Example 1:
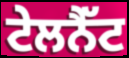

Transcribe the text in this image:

ਟੇਲਨੈੱਟ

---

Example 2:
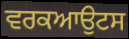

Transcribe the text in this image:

ਵਰਕਆਉਟਸ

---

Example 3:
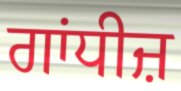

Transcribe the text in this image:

ਗਾਂਧੀਜ਼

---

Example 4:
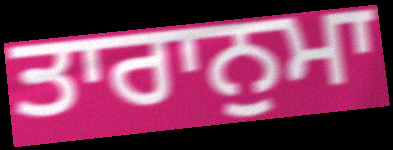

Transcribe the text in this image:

ਤਾਰਾਨੁਮਾ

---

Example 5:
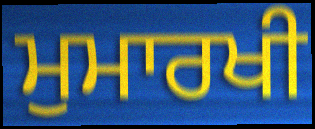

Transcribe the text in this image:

ਮੁਮਾਰਖੀ